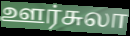
ஊர்சுலா